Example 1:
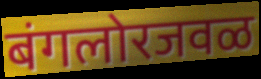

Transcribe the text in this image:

बंगलोरजवळ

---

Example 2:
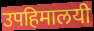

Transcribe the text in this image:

उपहिमालयी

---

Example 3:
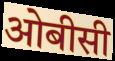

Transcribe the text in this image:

ओबीसी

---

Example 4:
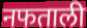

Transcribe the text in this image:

नफताली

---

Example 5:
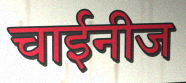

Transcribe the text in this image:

चाईनीज